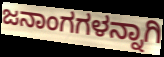
ಜನಾಂಗಗಳನ್ನಾಗಿ